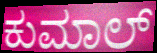
ಕುಮಾಲ್